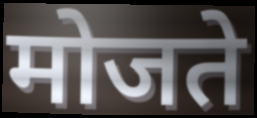
मोजते